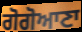
ਗੋਗੋਆਣਾ